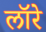
लॉरे